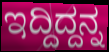
ಇದ್ದಿದ್ದನ್ನ